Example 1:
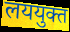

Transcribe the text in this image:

लययुक्त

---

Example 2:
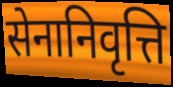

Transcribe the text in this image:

सेनानिवृत्ति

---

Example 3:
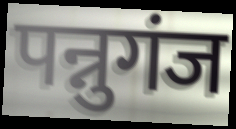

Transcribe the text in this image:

पन्नुगंज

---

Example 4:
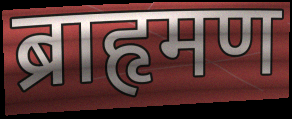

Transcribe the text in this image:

ब्राहृमण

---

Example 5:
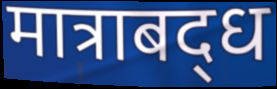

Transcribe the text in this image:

मात्राबद्ध